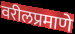
वरीलप्रमाणे